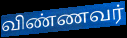
விண்ணவர்